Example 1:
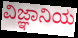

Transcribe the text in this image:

ವಿಜ್ಞಾನಿಯ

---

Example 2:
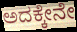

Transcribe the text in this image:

ಅದಕ್ಕೇನೇ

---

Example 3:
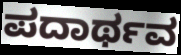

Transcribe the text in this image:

ಪದಾರ್ಥವ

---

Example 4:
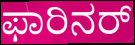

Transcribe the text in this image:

ಫಾರಿನರ್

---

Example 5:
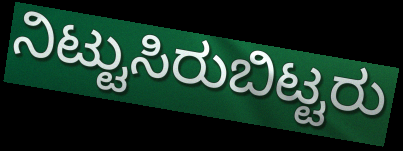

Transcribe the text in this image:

ನಿಟ್ಟುಸಿರುಬಿಟ್ಟರು